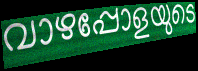
വാഴപ്പോളയുടെ